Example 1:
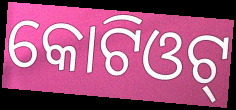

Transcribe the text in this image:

କୋଟିଓଟ୍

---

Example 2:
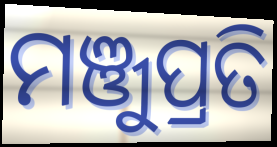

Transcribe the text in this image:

ମଞ୍ଜୁପ୍ରତି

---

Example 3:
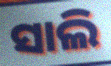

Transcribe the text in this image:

ସାଲି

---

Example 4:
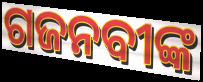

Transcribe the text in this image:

ଗଜନବୀଙ୍କ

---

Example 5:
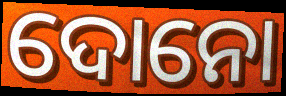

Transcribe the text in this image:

ଦୋନୋ